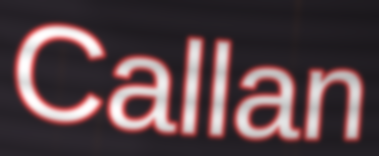
Callan